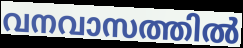
വനവാസത്തിൽ